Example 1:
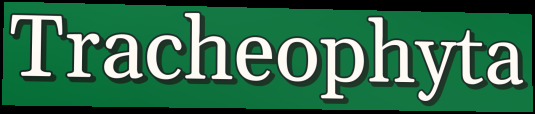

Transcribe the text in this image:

Tracheophyta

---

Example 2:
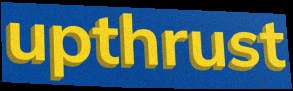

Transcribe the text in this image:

upthrust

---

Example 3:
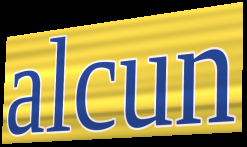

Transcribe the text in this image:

alcun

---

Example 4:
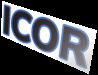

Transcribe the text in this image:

ICOR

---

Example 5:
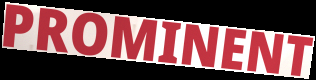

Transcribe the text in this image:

PROMINENT